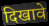
दिखावे